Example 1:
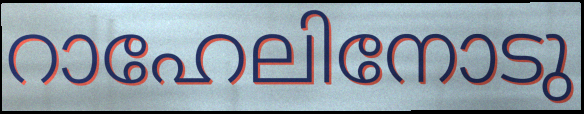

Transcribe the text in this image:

റാഹേലിനോടു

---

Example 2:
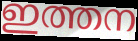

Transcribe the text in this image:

ഇത്തന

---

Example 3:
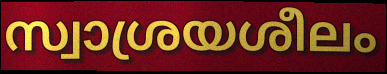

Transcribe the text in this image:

സ്വാശ്രയശീലം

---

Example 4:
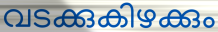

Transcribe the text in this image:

വടക്കുകിഴക്കും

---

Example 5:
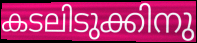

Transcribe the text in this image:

കടലിടുക്കിനു